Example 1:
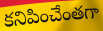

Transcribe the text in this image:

కనిపించేంతగా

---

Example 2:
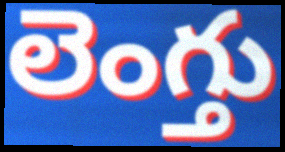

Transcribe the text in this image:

లెంగ్తు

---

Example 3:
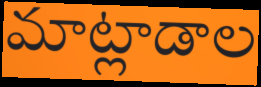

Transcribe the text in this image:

మాట్లాడాల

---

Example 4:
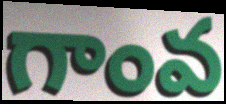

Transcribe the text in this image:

గాంవ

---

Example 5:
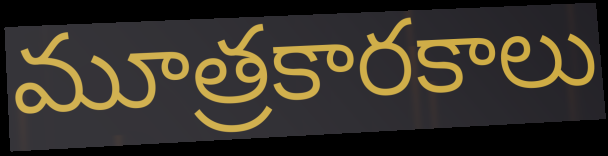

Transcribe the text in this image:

మూత్రకారకాలు